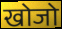
खोजो